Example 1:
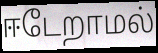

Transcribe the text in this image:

ஈடேறாமல்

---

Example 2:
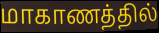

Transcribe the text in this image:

மாகாணத்தில்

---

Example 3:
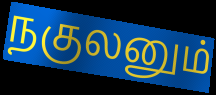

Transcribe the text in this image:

நகுலனும்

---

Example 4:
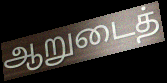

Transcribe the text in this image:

ஆறுடைத்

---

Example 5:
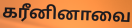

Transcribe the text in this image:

கரீனினாவை